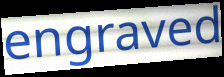
engraved